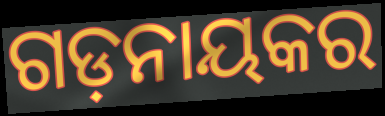
ଗଡ଼ନାୟକର